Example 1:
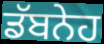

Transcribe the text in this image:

ਡੱਬਨੇਹ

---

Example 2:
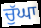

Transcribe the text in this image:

ਚੁੱਘਾ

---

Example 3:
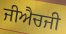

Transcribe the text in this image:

ਜੀਐਚਜੀ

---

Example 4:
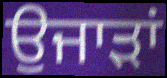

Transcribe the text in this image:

ਉਜਾੜਾਂ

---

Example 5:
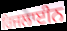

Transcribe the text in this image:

ਰਿਜਲਾਈਨ